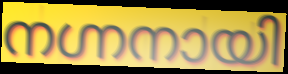
നഗ്നനായി